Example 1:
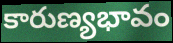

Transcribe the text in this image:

కారుణ్యభావం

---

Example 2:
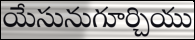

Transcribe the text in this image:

యేసునుగూర్చియు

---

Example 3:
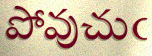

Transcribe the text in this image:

పోవుచుఁ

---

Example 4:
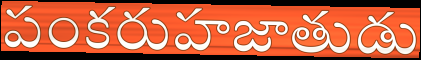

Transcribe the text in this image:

పంకరుహజాతుడు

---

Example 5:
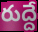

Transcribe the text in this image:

రుద్దే